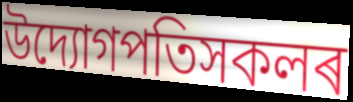
উদ্যোগপতিসকলৰ